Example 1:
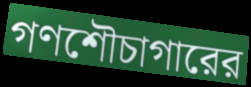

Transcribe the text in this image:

গণশৌচাগারের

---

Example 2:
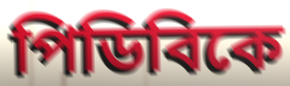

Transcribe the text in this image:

পিডিবিকে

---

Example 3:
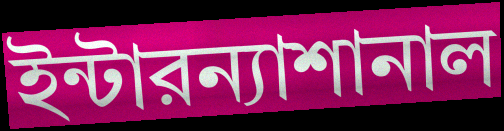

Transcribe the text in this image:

ইন্টারন্যাশানাল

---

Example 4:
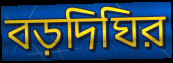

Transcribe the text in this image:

বড়দিঘির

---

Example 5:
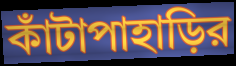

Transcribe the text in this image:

কাঁটাপাহাড়ির